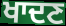
ਖਾਦਣ